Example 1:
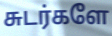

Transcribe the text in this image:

சுடர்களே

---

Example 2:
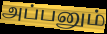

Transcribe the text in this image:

அப்பனும்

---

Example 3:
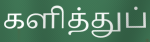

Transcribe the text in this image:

களித்துப்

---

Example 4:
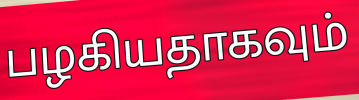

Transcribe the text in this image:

பழகியதாகவும்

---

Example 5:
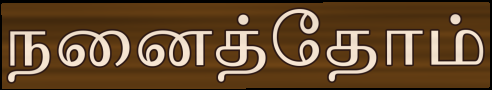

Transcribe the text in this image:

நனைத்தோம்